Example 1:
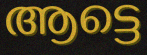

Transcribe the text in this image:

ആട്ടെ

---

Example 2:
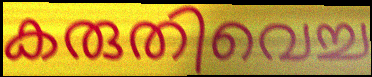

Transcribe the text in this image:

കരുതിവെച്ച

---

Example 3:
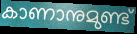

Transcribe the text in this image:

കാണാനുമുണ്ട്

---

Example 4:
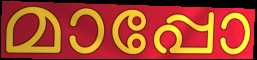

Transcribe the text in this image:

മാപ്പോ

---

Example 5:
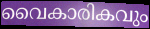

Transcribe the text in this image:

വൈകാരികവും